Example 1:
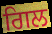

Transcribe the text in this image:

ਗਿਲ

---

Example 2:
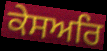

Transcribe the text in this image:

ਕੇਸਅਰਿ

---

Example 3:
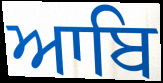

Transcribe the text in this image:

ਆਬਿ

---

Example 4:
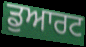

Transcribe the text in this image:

ਡੁਆਰਟ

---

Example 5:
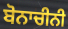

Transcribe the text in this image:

ਬੋਨਾਚੀਨੀ